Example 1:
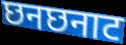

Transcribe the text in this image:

छनछनाट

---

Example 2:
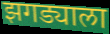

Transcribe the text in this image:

झगड्याला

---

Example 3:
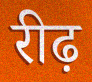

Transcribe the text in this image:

रीढ़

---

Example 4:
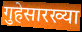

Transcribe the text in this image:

गुहेसारख्या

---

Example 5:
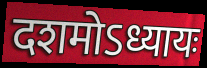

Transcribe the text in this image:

दशमोऽध्यायः